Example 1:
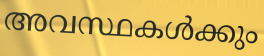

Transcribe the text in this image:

അവസ്ഥകൾക്കും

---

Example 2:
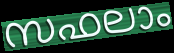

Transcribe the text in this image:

സഫലാം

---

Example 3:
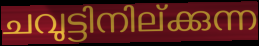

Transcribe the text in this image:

ചവുട്ടിനില്ക്കുന്ന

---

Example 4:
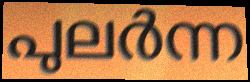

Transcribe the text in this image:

പുലർന്ന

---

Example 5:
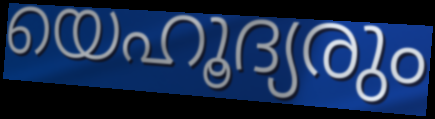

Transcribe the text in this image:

യെഹൂദ്യരും